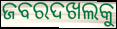
ଜବରଦଖଲକୁ